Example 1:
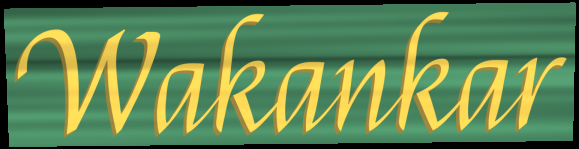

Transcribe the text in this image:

Wakankar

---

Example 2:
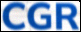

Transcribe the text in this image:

CGR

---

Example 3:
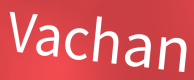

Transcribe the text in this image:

Vachan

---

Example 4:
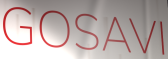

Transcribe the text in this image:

GOSAVI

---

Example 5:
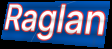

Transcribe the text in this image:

Raglan